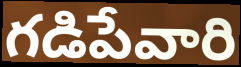
గడిపేవారి